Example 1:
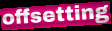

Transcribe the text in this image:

offsetting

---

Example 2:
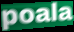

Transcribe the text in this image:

poala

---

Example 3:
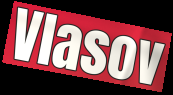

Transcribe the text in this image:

Vlasov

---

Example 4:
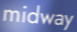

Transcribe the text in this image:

midway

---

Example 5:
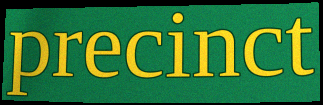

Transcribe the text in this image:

precinct